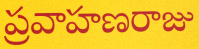
ప్రవాహణరాజు